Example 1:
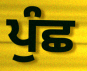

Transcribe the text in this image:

ਪੁੰਛ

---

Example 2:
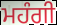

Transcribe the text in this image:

ਮਹੰਗੀ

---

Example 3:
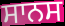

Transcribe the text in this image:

ਸਾਨਸ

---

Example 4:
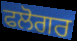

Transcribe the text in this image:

ਫਲੋਗਰ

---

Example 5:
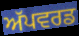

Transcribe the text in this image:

ਅੱਪਵਰਡ